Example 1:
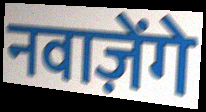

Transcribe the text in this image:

नवाज़ेंगे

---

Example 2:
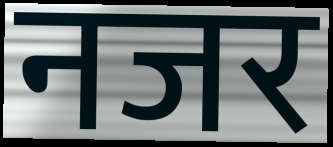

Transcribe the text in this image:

नजर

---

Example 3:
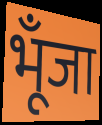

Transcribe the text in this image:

भूँजा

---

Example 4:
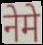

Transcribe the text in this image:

नेमे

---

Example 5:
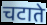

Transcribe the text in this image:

चटाते